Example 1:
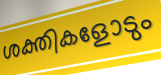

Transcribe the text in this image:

ശക്തികളോടും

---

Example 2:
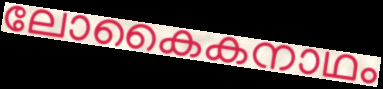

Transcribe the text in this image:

ലോകൈകനാഥം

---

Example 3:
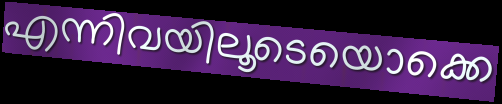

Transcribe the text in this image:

എന്നിവയിലൂടെയൊക്കെ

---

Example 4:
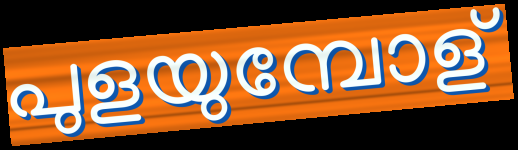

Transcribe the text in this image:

പുളയുമ്പോള്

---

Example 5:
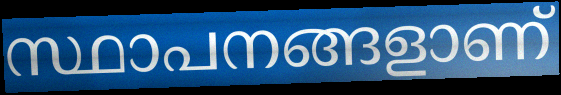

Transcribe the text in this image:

സ്ഥാപനങ്ങളാണ്